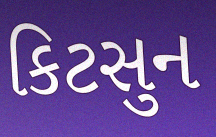
કિટસુન